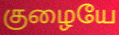
குழையே